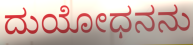
ದುಯೋಧನನು